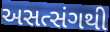
અસત્સંગથી